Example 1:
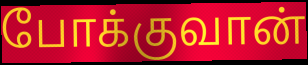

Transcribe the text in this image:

போக்குவான்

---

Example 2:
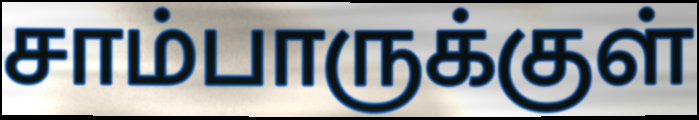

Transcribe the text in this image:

சாம்பாருக்குள்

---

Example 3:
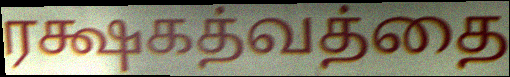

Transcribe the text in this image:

ரக்ஷகத்வத்தை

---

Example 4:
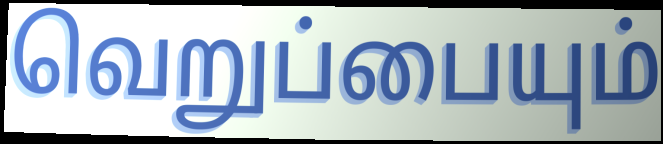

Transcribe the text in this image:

வெறுப்பையும்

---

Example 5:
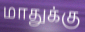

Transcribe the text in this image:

மாதுக்கு